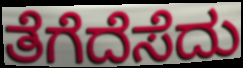
ತೆಗೆದೆಸೆದು